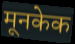
मूनकेक